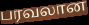
பரவலான